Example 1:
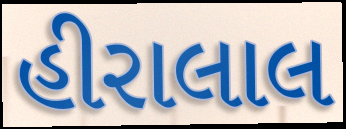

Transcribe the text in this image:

હીરાલાલ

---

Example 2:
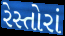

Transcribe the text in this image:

રેસ્તોરાં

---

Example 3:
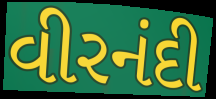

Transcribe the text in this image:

વીરનંદી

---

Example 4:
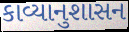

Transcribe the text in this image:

કાવ્યાનુશાસન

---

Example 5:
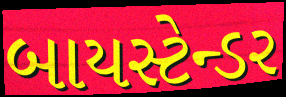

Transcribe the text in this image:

બાયસ્ટેન્ડર